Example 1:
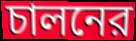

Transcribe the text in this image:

চালনের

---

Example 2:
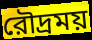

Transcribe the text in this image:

রৌদ্রময়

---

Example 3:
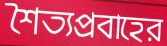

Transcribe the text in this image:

শৈত্যপ্রবাহের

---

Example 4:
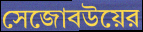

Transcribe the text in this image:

সেজোবউয়ের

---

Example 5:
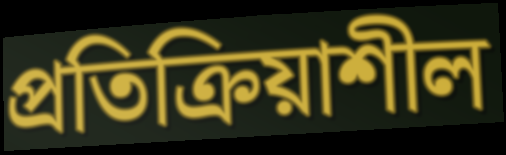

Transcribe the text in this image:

প্রতিক্রিয়াশীল